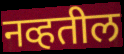
नव्हतील